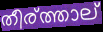
തീര്ത്താല്